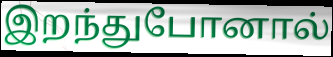
இறந்துபோனால்